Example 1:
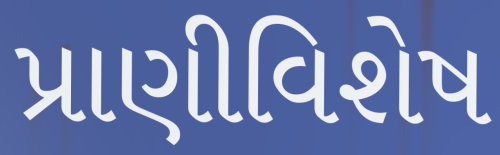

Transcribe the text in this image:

પ્રાણીવિશેષ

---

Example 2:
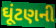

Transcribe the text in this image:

ઘૂંટણની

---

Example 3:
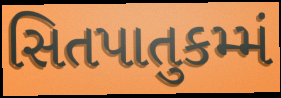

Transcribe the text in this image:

સિતપાતુકમ્મં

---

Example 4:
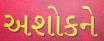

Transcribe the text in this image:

અશોકને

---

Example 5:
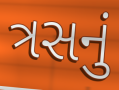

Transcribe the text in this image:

ત્રસનું